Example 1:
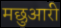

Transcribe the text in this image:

मछुआरी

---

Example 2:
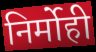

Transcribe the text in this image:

निर्मोही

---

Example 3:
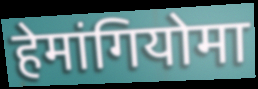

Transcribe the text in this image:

हेमांगियोमा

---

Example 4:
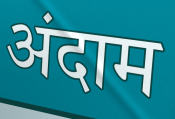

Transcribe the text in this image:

अंदाम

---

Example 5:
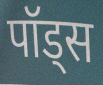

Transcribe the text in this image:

पॉड्स